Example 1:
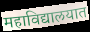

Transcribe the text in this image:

महाविद्यालयात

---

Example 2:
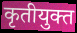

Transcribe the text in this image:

कृतीयुक्त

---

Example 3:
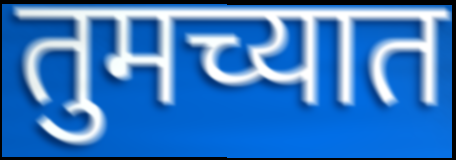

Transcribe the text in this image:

तुमच्यात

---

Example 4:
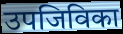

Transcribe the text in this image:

उपजिविका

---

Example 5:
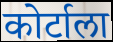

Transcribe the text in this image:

कोर्टाला